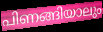
പിണങ്ങിയാലും